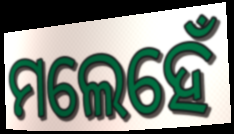
ମଲେହେଁ